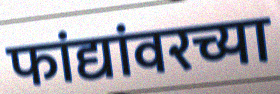
फांद्यांवरच्या